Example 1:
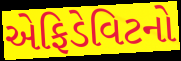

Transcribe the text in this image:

એફિડેવિટનો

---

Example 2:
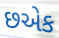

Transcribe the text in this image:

છએક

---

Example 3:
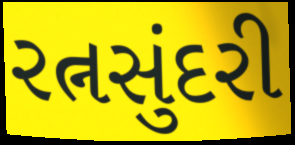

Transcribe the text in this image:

રત્નસુંદરી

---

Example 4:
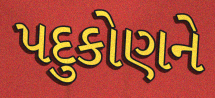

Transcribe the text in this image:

પદુકોણને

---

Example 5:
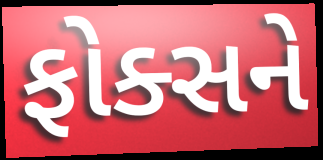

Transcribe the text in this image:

ફોક્સને